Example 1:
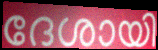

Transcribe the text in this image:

ദേശായി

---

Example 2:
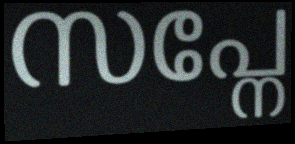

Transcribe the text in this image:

സപ്നേ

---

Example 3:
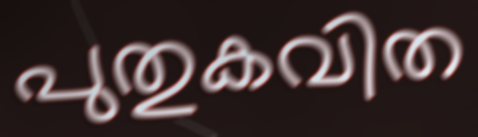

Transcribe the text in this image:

പുതുകവിത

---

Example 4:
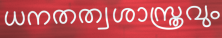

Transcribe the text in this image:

ധനതത്വശാസ്ത്രവും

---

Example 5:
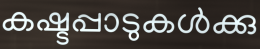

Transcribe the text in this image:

കഷ്ടപ്പാടുകൾക്കു